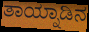
ತಾಯ್ನಾಡಿನ